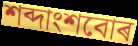
শব্দাংশবোৰ